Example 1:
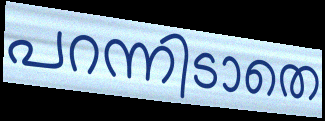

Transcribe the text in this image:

പറന്നിടാതെ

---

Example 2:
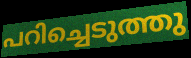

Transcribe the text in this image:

പറിച്ചെടുത്തു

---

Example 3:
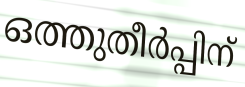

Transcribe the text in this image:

ഒത്തുതീർപ്പിന്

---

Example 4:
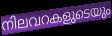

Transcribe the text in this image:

നിലവറകളുടെയും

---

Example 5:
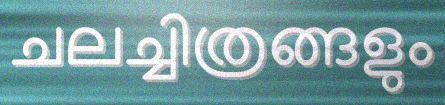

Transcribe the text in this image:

ചലച്ചിത്രങ്ങളും